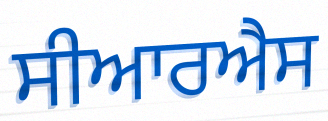
ਸੀਆਰਐਸ